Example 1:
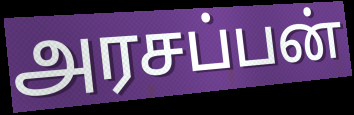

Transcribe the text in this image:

அரசப்பன்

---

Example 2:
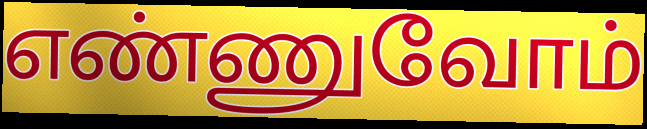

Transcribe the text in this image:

எண்ணுவோம்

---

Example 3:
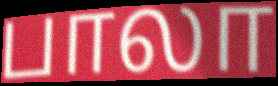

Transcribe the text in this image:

பாலா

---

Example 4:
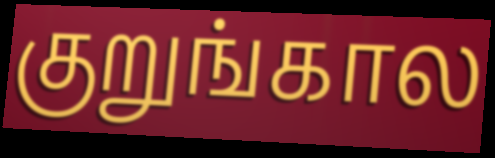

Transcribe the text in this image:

குறுங்கால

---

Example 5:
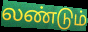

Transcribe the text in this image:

லண்டும்